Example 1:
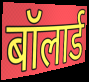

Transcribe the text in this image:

बॉलार्ड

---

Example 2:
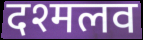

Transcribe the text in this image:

दश्मलव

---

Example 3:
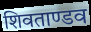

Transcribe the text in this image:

शिवताण्डव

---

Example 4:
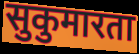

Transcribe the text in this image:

सुकुमारता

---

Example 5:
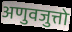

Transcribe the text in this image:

अणुवजुत्तो